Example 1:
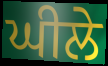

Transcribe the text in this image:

ਘੀਲੇ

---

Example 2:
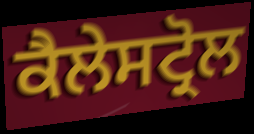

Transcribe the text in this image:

ਕੈਲੇਸਟ੍ਰੋਲ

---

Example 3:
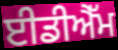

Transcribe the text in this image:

ਈਡੀਐੱਮ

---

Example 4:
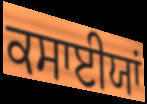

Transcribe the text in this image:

ਕਸਾਈਯਾਂ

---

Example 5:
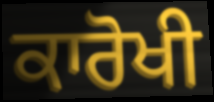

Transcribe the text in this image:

ਕਾਰੋਖੀ